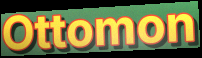
Ottomon